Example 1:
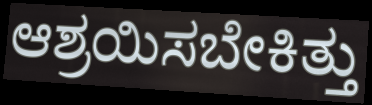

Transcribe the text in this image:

ಆಶ್ರಯಿಸಬೇಕಿತ್ತು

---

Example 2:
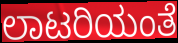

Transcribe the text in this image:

ಲಾಟರಿಯಂತೆ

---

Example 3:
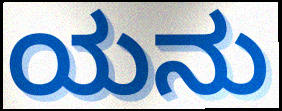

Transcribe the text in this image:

ಯನು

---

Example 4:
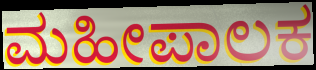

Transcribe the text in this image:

ಮಹೀಪಾಲಕ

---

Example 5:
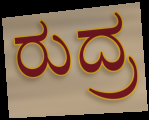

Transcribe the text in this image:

ರುದ್ರ